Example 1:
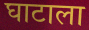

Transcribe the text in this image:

घाटाला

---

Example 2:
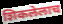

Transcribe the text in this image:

शिकलेलाच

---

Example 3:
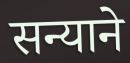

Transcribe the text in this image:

सन्याने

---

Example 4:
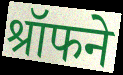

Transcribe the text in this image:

श्रॉफने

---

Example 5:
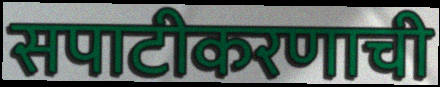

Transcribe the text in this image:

सपाटीकरणाची